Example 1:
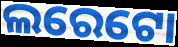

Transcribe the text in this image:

ଲରେଟୋ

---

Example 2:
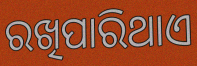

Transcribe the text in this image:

ରଖିପାରିଥାଏ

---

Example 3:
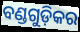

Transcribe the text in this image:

ବଣ୍ଡଗୁଡ଼ିକର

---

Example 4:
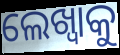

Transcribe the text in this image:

ଲେଖ୍ବାକୁ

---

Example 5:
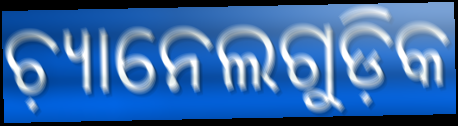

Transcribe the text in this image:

ଚ଼୍ୟାନେଲଗୁଡ଼ିକ